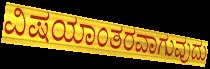
ವಿಷಯಾಂತರವಾಗುವುದು